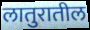
लातुरातील